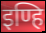
इण्हि